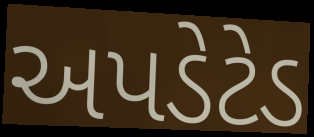
અપડેટેડ